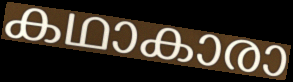
കഥാകാരാ